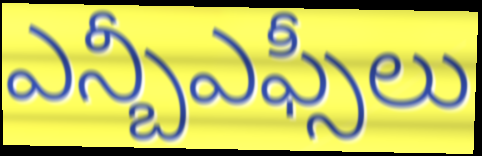
ఎన్బీఎఫ్సీలు